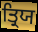
ਤ੍ਰਿਯ